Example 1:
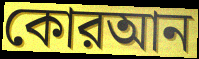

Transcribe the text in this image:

কোরআন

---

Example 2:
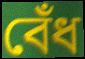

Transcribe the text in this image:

বেঁধ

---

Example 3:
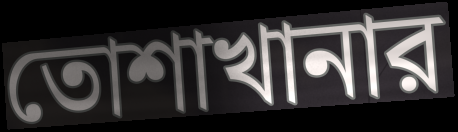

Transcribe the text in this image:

তোশাখানার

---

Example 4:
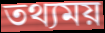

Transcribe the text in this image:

তথ্যময়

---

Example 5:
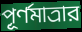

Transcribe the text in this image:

পূর্ণমাত্রার